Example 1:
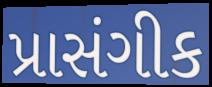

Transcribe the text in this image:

પ્રાસંગીક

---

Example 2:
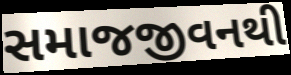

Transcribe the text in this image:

સમાજજીવનથી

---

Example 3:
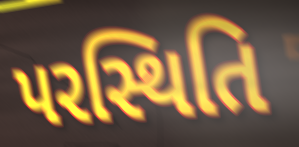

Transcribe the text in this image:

પરસ્થિતિ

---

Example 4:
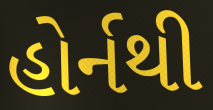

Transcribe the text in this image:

હોર્નથી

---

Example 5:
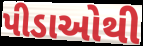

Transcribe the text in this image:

પીડાઓથી